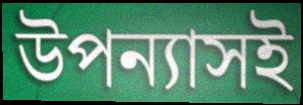
উপন্যাসই